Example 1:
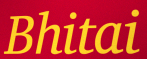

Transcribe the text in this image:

Bhitai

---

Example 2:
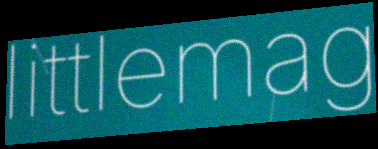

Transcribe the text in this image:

littlemag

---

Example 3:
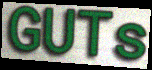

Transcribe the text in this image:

GUTs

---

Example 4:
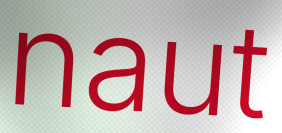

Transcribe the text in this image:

naut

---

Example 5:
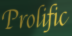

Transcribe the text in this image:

Prolific